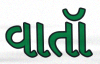
વાતૉ